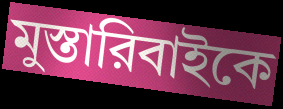
মুস্তারিবাইকে